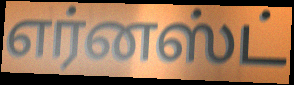
எர்னஸ்ட்